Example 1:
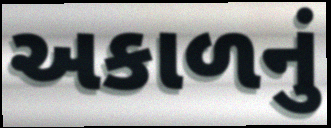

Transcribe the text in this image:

અકાળનું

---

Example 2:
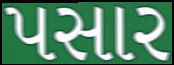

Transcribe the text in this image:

પસાર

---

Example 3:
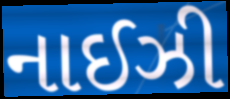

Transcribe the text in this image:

નાઈઝી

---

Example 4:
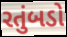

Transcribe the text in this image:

રતુંબડો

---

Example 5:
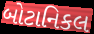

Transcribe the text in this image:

બોટાનિકલ